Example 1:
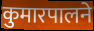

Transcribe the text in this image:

कुमारपालने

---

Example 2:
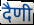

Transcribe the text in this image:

दैणी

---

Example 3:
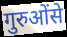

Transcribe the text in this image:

गुरुओंसे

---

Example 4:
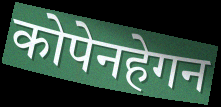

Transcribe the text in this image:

कोपेनहेगन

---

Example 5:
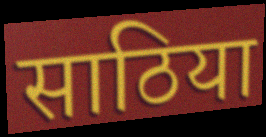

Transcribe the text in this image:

साठिया